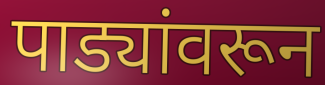
पाड्यांवरून